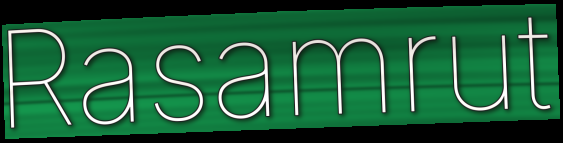
Rasamrut